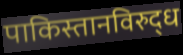
पाकिस्तानविरुद्ध